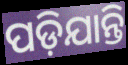
ପଡ଼ିଯାନ୍ତି